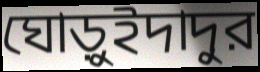
ঘোড়ুইদাদুর